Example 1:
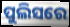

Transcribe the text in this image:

ପୁଲିସରେ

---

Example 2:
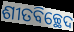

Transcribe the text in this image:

ଶୀତବିଚ୍ଛେଦ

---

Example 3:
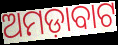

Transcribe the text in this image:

ଅମଡ଼ାବାଟ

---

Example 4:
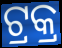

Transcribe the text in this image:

ଟ୍ରକ୍ର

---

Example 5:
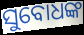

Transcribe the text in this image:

ସୁବୋଧଙ୍କ